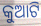
କୁଆଟି